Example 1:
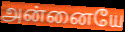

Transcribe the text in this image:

அன்னையே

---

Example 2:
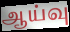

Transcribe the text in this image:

ஆய்வு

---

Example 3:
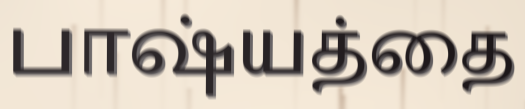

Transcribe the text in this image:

பாஷ்யத்தை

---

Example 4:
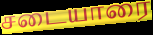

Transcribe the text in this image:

சடையாரை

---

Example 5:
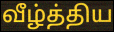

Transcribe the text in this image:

வீழ்த்திய